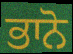
ਭਾਨੋ